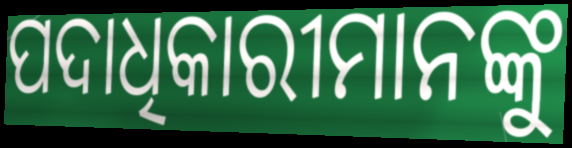
ପଦାଧିକାରୀମାନଙ୍କୁ